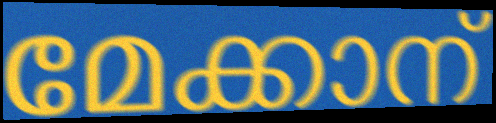
മേക്കാന്